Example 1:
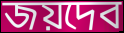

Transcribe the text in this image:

জয়দেব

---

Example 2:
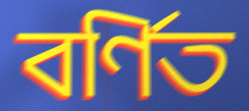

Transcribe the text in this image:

বর্ণিত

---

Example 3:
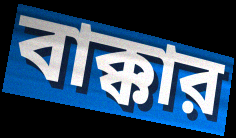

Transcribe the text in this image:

বাক্কার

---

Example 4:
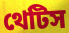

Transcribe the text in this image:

থেটিস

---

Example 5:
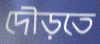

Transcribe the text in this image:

দৌড়তে